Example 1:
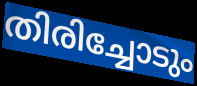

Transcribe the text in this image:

തിരിച്ചോടും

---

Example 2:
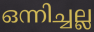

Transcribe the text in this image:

ഒന്നിച്ചല്ല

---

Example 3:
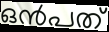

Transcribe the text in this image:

ഒൻപത്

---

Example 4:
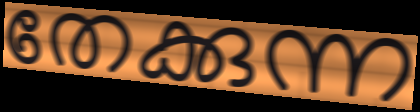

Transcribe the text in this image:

തേക്കുന്ന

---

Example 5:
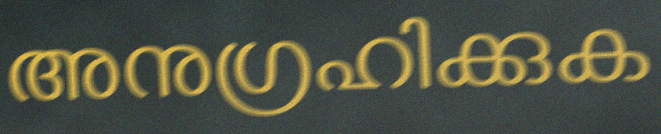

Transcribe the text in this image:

അനുഗ്രഹിക്കുക